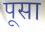
पूसा